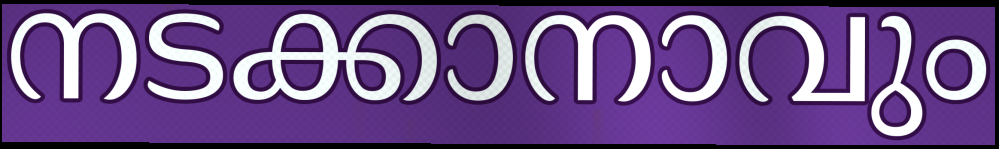
നടക്കാനാവും